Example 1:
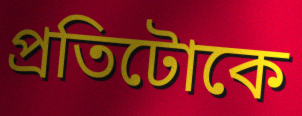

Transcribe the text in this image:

প্ৰতিটোকে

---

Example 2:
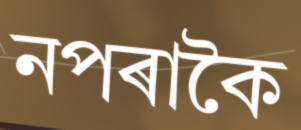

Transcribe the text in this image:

নপৰাকৈ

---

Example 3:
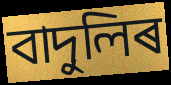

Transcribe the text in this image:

বাদুলিৰ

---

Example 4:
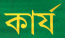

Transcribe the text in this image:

কাৰ্য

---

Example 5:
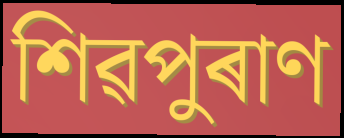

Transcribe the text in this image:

শিৱপুৰাণ